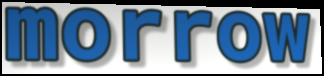
morrow